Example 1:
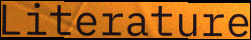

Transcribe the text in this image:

Literature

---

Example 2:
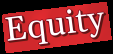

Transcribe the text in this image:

Equity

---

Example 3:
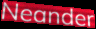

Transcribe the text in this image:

Neander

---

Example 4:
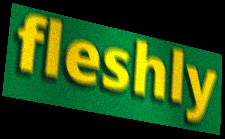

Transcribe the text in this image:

fleshly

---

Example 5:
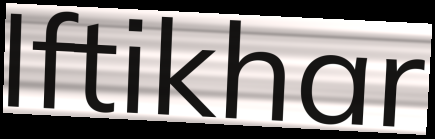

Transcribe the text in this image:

Iftikhar